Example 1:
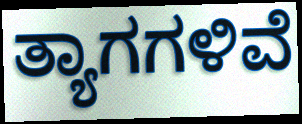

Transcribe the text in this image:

ತ್ಯಾಗಗಳಿವೆ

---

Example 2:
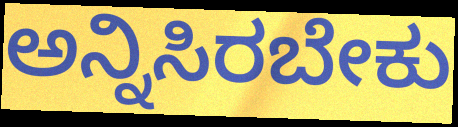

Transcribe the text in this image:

ಅನ್ನಿಸಿರಬೇಕು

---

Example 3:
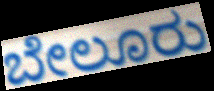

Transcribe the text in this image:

ಬೇಲೂರು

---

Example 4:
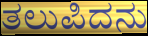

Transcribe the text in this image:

ತಲುಪಿದನು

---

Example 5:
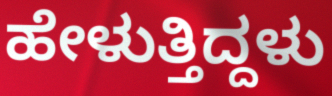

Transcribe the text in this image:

ಹೇಳುತ್ತಿದ್ದಳು